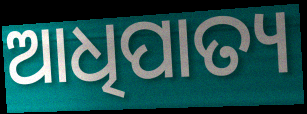
ଆଧିପାତ୍ୟ